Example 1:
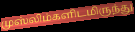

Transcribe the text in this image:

முஸ்லிம்களிடமிருந்து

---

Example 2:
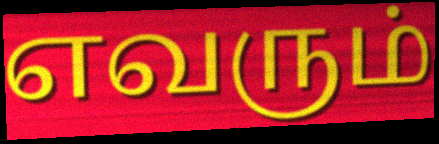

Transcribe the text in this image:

எவரும்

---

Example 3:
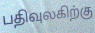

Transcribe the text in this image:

பதிவுலகிற்கு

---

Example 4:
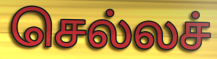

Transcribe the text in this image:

செல்லச்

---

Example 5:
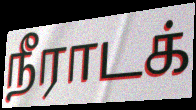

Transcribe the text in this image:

நீராடக்